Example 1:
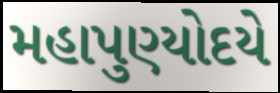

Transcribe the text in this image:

મહાપુણ્યોદયે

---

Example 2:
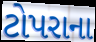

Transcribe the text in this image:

ટોપરાના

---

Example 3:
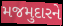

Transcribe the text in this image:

મજમુદારને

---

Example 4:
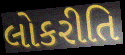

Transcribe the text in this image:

લોકરીતિ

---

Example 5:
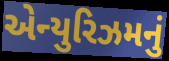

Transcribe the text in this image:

એન્યુરિઝમનું